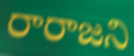
రారాజని